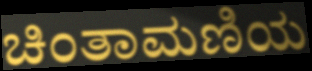
ಚಿಂತಾಮಣಿಯ